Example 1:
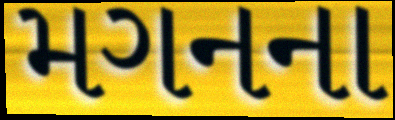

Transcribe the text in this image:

મગનના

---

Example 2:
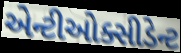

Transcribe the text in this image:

એન્ટીઓક્સીડેન્ટ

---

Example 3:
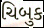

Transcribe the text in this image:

ચિબુક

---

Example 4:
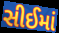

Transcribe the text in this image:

સીઈમાં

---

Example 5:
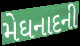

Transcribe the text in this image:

મેઘનાદની